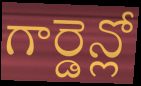
గార్డెన్లో